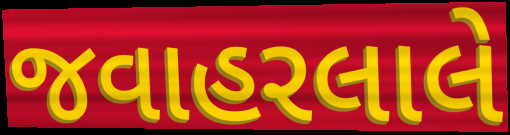
જવાહરલાલે